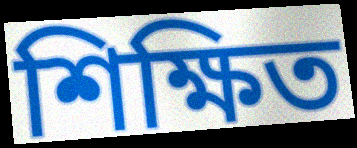
শিক্ষিত